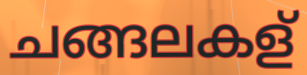
ചങ്ങലകള്